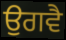
ਉਗਵੈ